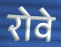
रोवे